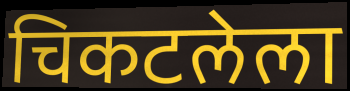
चिकटलेला